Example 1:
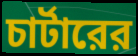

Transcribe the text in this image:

চার্টারের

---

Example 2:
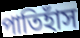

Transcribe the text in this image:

পাতিহাঁস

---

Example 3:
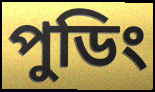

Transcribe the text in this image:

পুডিং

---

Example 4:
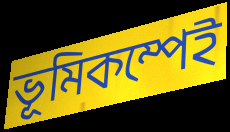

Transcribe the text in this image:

ভূমিকম্পেই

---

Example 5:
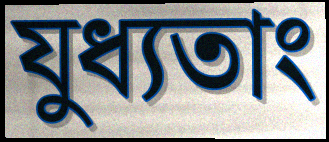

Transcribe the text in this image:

যুধ্যতাং